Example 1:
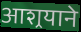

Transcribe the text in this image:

आश्रयाने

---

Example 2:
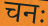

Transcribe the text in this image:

चनः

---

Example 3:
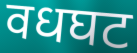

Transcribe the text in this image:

वधघट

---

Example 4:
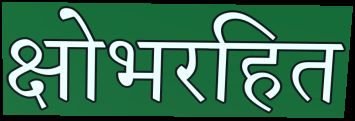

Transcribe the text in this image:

क्षोभरहित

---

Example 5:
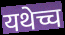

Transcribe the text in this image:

यथेच्च